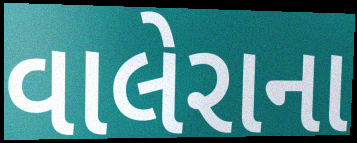
વાલેરાના